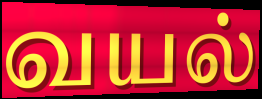
வயல்